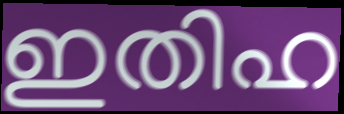
ഇതിഹ